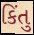
કિંતુ